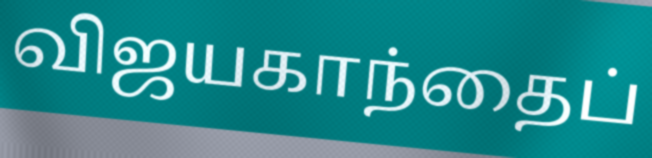
விஜயகாந்தைப்